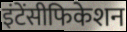
इंटेंसीफिकेशन